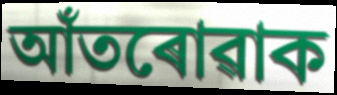
আঁতৰোৱাক